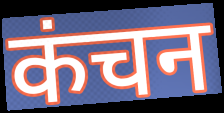
कंचन